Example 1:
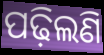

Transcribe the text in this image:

ପଢ଼ିଲଣି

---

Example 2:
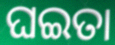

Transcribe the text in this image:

ଘଇତା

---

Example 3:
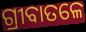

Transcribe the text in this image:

ଗ୍ରୀବାତଳେ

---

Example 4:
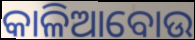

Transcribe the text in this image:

କାଳିଆବୋଉ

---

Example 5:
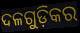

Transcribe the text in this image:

ଦଳଗୁଡ଼ିକର